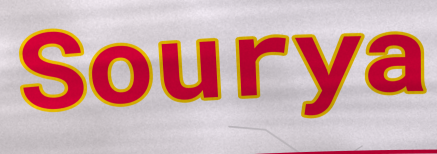
Sourya